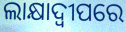
ଲାକ୍ଷାଦ୍ୱୀପରେ